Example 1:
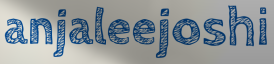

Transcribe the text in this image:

anjaleejoshi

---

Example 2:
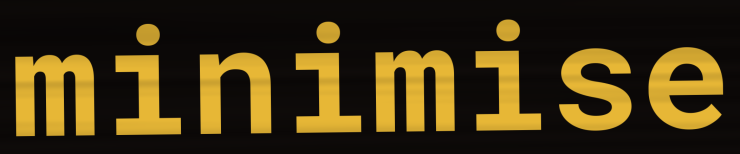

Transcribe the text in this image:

minimise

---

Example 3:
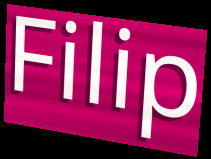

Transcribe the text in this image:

Filip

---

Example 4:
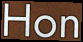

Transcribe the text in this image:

Hon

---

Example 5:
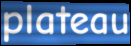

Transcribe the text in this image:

plateau